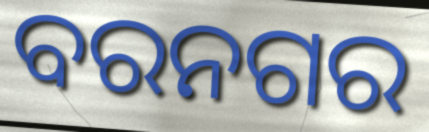
ବରନଗର